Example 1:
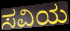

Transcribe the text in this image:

ಸವಿಯ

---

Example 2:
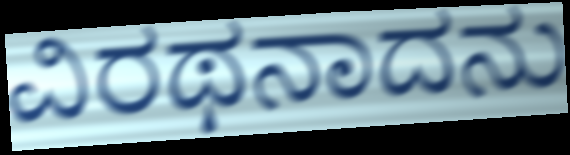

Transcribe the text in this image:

ವಿರಥನಾದನು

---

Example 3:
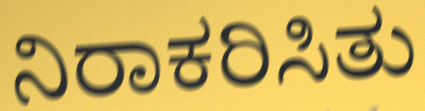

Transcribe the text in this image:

ನಿರಾಕರಿಸಿತು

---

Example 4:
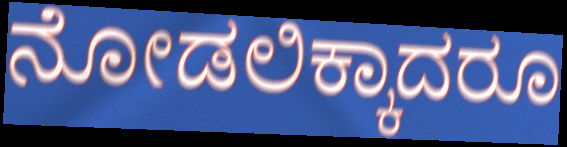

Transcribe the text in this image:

ನೋಡಲಿಕ್ಕಾದರೂ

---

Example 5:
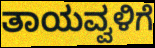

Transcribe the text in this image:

ತಾಯವ್ವಳಿಗೆ